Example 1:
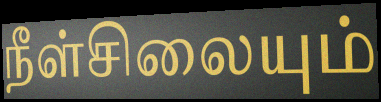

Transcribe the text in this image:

நீள்சிலையும்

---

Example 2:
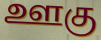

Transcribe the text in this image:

ஊகு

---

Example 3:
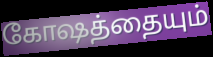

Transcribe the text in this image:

கோஷத்தையும்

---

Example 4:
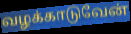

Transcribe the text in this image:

வழக்காடுவேன்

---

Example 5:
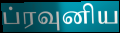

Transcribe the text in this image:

ப்ரவுனிய